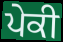
ਪੇਕੀ